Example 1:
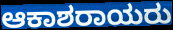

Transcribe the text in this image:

ಆಕಾಶರಾಯರು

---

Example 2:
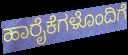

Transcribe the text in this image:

ಹಾರೈಕೆಗಳೊಂದಿಗೆ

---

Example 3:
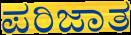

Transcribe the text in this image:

ಪರಿಜಾತ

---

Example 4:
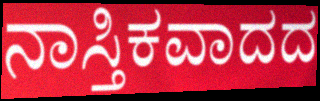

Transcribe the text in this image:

ನಾಸ್ತಿಕವಾದದ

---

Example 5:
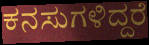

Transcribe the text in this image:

ಕನಸುಗಳಿದ್ದರೆ